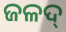
ଜଳଦ୍